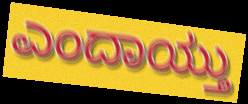
ಎಂದಾಯ್ತು